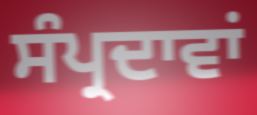
ਸੰਪ੍ਰਦਾਵਾਂ